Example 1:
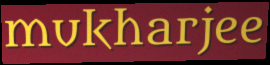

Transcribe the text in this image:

mukharjee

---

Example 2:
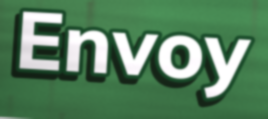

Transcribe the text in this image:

Envoy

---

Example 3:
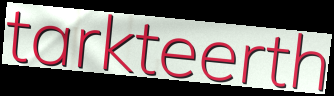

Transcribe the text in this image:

tarkteerth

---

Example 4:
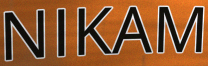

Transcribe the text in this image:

NIKAM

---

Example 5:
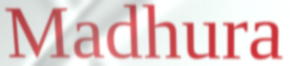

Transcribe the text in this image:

Madhura